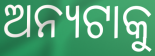
ଅନ୍ୟଟାକୁ